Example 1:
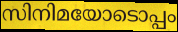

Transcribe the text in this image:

സിനിമയോടൊപ്പം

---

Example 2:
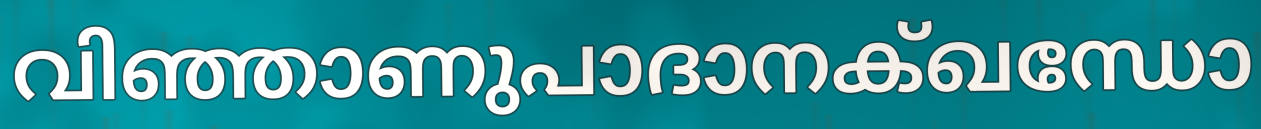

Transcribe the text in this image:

വിഞ്ഞാണുപാദാനക്ഖന്ധോ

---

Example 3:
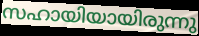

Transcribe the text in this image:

സഹായിയായിരുന്നു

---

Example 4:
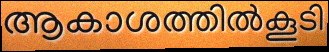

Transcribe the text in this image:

ആകാശത്തിൽകൂടി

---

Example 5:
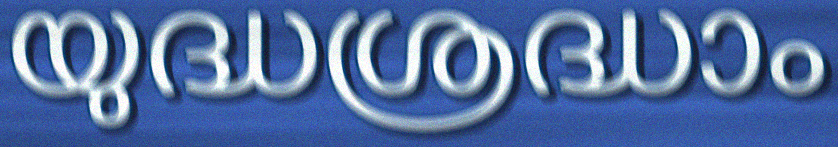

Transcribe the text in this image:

യുദ്ധശ്രദ്ധാം